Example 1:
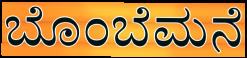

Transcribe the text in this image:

ಬೊಂಬೆಮನೆ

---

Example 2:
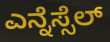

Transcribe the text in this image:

ಎನ್ನೆಸ್ಸೆಲ್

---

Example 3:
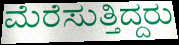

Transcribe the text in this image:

ಮೆರೆಸುತ್ತಿದ್ದರು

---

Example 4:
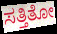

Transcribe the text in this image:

ಸತ್ತಿತೋ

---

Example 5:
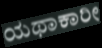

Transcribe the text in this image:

ಯಥಾಕಾರೀ